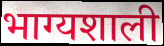
भाग्यशाली